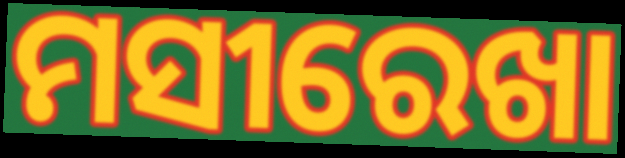
ମସୀରେଖା